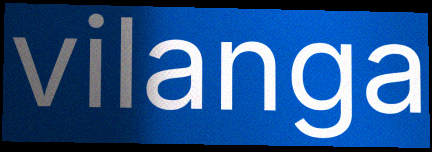
vilanga